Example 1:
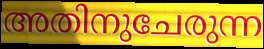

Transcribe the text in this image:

അതിനുചേരുന്ന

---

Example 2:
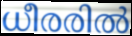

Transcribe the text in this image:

ധീരരിൽ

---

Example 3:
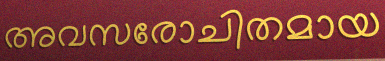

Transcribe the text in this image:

അവസരോചിതമായ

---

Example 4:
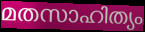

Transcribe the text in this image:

മതസാഹിത്യം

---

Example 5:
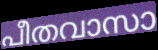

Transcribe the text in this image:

പീതവാസാ